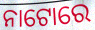
ନାଟୋରେ